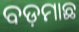
ବଡ଼ମାଛ